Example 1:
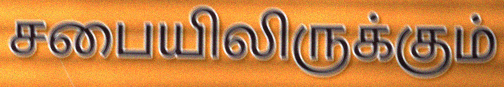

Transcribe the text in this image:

சபையிலிருக்கும்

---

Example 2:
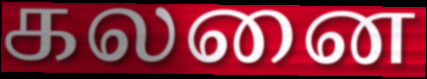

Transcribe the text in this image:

கலனை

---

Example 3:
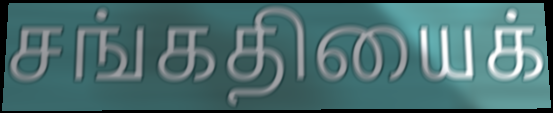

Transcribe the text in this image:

சங்கதியைக்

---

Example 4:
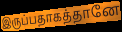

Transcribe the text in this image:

இருப்பதாகத்தானே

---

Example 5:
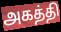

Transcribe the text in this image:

அகத்தி